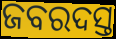
ଜବରଦସ୍ତ